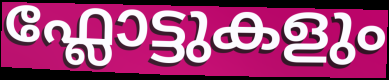
ഫ്ലോട്ടുകളും